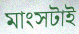
মাংসটাই